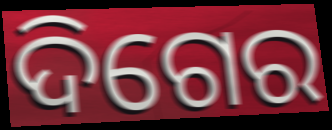
ଦିଗେର